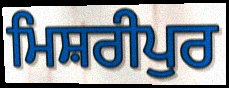
ਮਿਸ਼ਰੀਪੁਰ